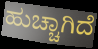
ಹುಚ್ಚಾಗಿದೆ